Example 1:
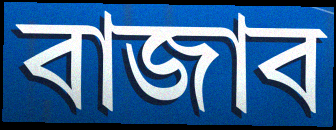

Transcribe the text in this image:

বাজাব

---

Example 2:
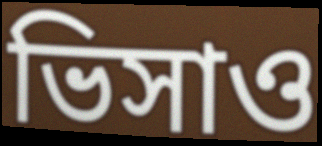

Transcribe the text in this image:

ভিসাও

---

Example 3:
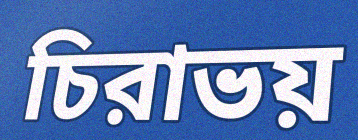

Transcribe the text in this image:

চিরাভয়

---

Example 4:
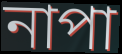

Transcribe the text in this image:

নাপা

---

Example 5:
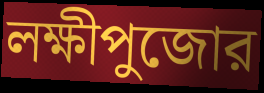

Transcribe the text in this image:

লক্ষীপুজোর